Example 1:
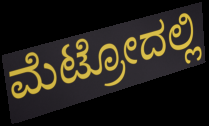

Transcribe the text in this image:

ಮೆಟ್ರೋದಲ್ಲಿ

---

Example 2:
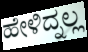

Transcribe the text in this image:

ಹೇಳಿದ್ನಲ್ಲ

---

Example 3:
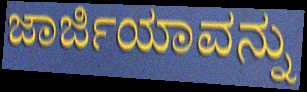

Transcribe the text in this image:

ಜಾರ್ಜಿಯಾವನ್ನು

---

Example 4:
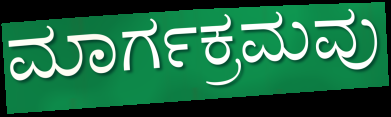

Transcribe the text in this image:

ಮಾರ್ಗಕ್ರಮವು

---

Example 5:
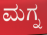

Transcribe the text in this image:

ಮಗ್ನ